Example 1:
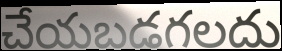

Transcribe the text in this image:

చేయబడగలదు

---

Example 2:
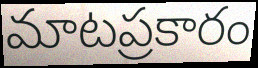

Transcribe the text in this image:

మాటప్రకారం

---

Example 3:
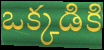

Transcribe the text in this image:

ఒక్కడికి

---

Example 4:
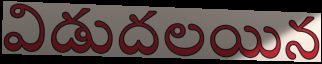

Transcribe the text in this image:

విడుదలయిన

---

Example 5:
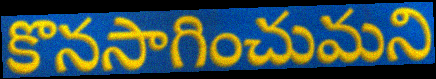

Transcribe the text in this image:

కొనసాగించుమని